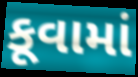
કૂવામાં